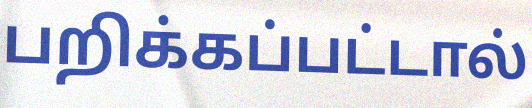
பறிக்கப்பட்டால்